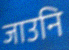
जाउनि